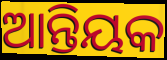
ଆନ୍ତିୟକ